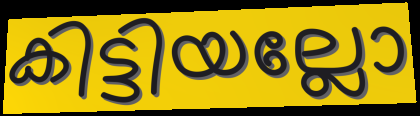
കിട്ടിയല്ലോ